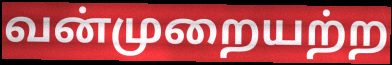
வன்முறையற்ற